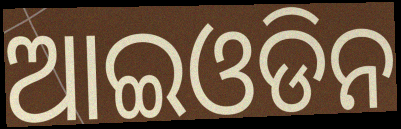
ଆଇଓଡିନ